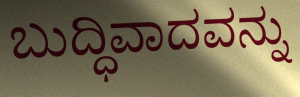
ಬುದ್ಧಿವಾದವನ್ನು